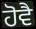
ਹੋਵੈ